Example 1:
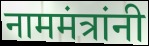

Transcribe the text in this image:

नाममंत्रांनी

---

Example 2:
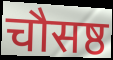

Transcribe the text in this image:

चौसष्ठ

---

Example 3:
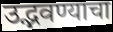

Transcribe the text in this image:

उद्भवण्याचा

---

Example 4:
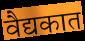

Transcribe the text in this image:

वैद्यकात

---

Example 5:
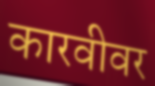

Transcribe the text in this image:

कारवीवर